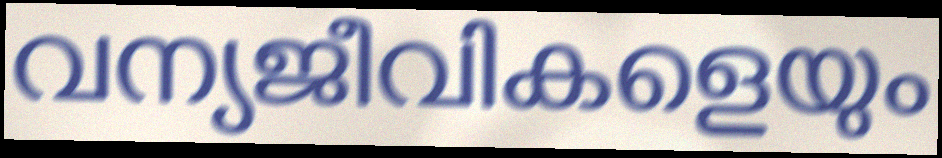
വന്യജീവികളെയും